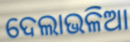
ଦେଲାଭଳିଆ